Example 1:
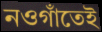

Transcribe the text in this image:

নওগাঁতেই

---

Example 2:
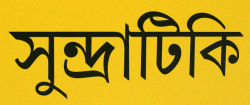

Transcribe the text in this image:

সুন্দ্রাটিকি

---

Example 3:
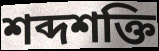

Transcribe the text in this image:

শব্দশক্তি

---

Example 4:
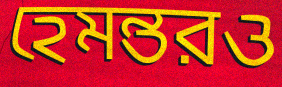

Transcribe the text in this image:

হেমন্তরও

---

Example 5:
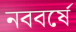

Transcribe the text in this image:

নববর্ষে